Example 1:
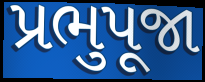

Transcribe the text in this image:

પ્રભુપૂજા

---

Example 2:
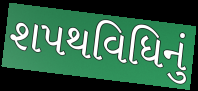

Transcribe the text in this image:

શપથવિધિનું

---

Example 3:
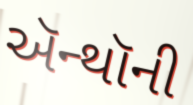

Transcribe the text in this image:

ઍન્થૉની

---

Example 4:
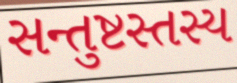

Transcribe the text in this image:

સન્તુષ્ટસ્તસ્ય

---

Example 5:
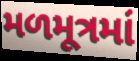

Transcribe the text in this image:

મળમૂત્રમાં